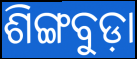
ଶିଙ୍ଗବୁଡ଼ା